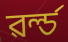
ৱৰ্ল্ড